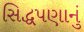
સિદ્ધપણાનું